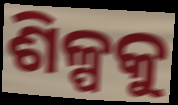
ଶିଳ୍ପକୁ